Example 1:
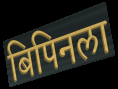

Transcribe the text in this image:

बिपिनला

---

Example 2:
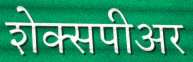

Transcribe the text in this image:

शेक्सपीअर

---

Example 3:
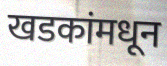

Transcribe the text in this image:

खडकांमधून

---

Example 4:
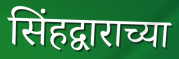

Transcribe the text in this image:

सिंहद्वाराच्या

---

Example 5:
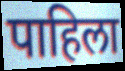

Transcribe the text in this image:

पाहिला